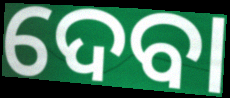
ଦେବା